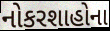
નોકરશાહોના